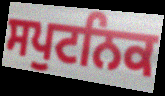
ਸਪੁਟਨਿਕ